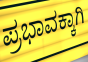
ಪ್ರಭಾವಕ್ಕಾಗಿ